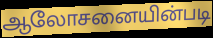
ஆலோசனையின்படி